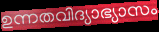
ഉന്നതവിദ്യാഭ്യാസം